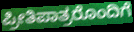
ಪ್ರೀತಿಪಾತ್ರರೊಂದಿಗೆ